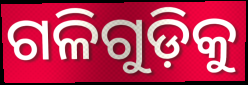
ଗଳିଗୁଡ଼ିକୁ